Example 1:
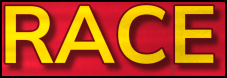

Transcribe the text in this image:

RACE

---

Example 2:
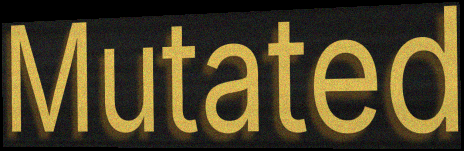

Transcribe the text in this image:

Mutated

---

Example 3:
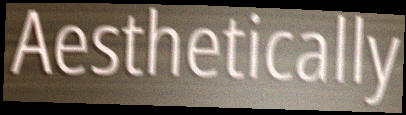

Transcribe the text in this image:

Aesthetically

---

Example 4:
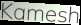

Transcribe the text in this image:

Kamesh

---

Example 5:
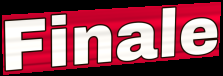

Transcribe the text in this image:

Finale